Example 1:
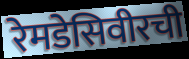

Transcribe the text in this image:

रेमडेसिवीरची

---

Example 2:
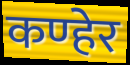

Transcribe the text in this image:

कण्हेर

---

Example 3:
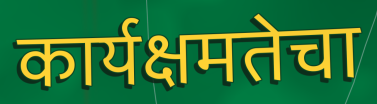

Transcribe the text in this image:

कार्यक्षमतेचा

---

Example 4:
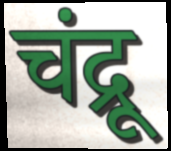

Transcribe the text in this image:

चंद्रू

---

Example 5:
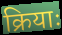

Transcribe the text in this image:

क्रियाः